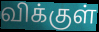
விக்குள்